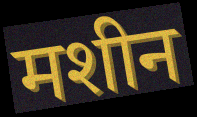
मशीन